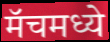
मॅचमध्ये